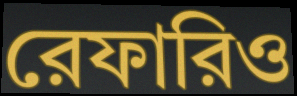
রেফারিও